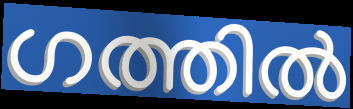
ഗത്തിൽ